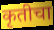
कृतीचा